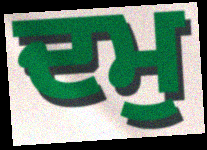
ਦਮੁ